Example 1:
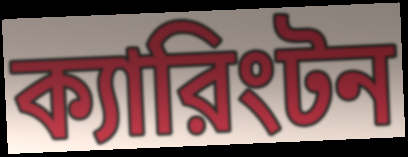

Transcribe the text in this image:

ক্যারিংটন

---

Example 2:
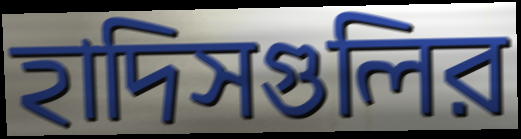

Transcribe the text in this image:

হাদিসগুলির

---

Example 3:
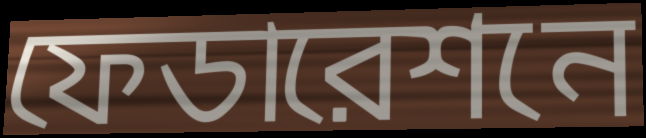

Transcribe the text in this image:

ফেডারেশনে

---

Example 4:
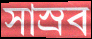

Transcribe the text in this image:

সাস্রব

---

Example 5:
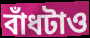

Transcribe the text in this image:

বাঁধটাও